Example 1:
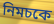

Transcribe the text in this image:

নিমচকে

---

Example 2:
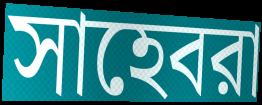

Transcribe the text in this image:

সাহেবরা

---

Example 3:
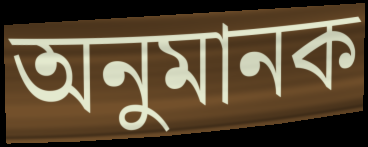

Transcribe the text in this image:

অনুমানক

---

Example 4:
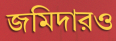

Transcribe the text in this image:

জমিদারও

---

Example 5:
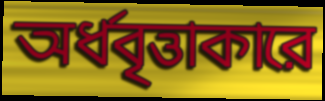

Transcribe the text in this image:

অর্ধবৃত্তাকারে